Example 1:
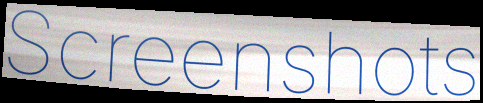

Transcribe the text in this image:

Screenshots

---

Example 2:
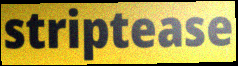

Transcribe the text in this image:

striptease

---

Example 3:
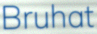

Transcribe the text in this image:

Bruhat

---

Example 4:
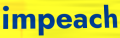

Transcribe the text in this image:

impeach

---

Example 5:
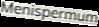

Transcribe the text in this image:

Menispermum